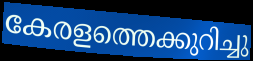
കേരളത്തെക്കുറിച്ചു